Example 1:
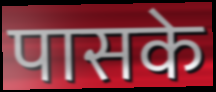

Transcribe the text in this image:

पासके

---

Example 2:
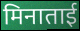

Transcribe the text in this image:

मिनाताई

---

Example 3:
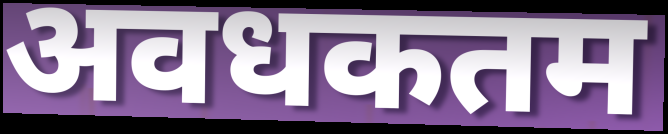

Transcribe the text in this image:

अवधकतम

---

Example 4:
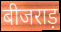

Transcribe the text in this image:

बीजराड़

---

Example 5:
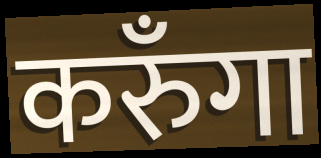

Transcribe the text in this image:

करुँगा